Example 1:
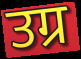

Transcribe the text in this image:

उग्र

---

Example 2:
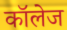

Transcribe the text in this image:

कॉलेज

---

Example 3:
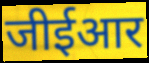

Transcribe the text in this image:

जीईआर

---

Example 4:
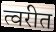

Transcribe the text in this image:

त्वरीत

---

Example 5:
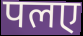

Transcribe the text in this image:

पलए